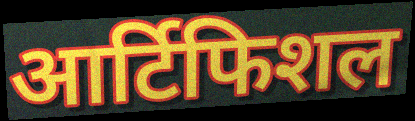
आर्टिफिशल